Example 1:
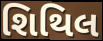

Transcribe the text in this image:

શિથિલ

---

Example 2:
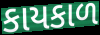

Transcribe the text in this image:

કાયકાળ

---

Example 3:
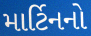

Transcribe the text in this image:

માર્ટિનનો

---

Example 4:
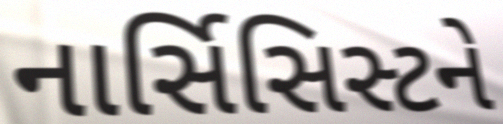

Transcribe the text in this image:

નાર્સિસિસ્ટને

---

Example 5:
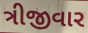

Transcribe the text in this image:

ત્રીજીવાર